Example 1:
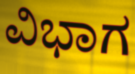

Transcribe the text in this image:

ವಿಭಾಗ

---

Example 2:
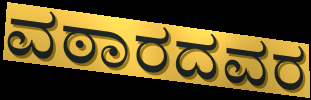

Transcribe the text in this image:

ವಠಾರದವರ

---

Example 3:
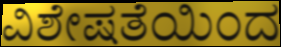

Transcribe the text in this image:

ವಿಶೇಷತೆಯಿಂದ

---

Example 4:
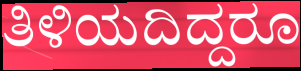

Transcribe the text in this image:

ತಿಳಿಯದಿದ್ದರೂ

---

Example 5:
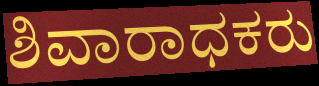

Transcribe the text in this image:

ಶಿವಾರಾಧಕರು